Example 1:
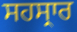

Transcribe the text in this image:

ਸਹਸ੍ਰਾਰ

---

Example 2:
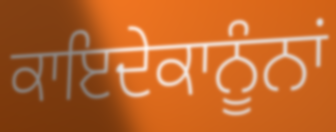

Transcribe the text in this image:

ਕਾਇਦੇਕਾਨੂੰਨਾਂ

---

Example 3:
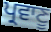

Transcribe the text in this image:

ਪ੍ਰਵਾਣੂ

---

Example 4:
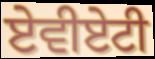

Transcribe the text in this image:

ਏਵੀਏਟੀ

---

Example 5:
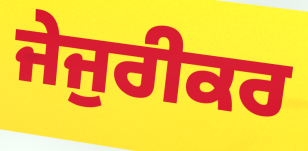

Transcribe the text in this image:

ਜੇਜੁਰੀਕਰ